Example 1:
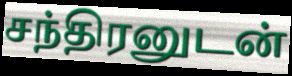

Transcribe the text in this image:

சந்திரனுடன்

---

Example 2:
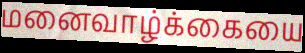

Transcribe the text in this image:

மனைவாழ்க்கையை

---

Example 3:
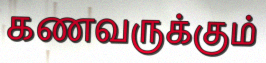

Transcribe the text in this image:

கணவருக்கும்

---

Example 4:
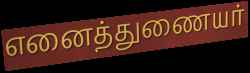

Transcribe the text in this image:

எனைத்துணையர்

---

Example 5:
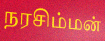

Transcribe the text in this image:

நரசிம்மன்